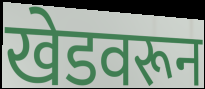
खेडवरून